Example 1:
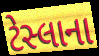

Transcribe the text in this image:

ટેસ્લાના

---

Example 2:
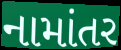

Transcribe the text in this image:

નામાંતર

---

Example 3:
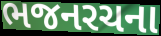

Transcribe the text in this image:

ભજનરચના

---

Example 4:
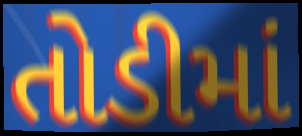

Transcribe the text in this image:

તોડીમાં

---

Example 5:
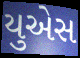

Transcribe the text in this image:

યુએસ